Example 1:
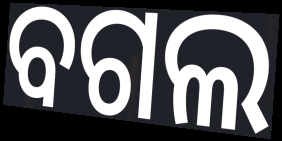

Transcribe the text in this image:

ବଗଲ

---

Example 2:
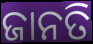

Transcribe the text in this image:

ଜାନତି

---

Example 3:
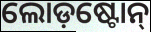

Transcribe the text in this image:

ଲୋଡ଼ଷ୍ଟୋନ୍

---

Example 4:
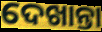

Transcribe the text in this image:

ଦେଖାନ୍ତା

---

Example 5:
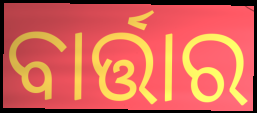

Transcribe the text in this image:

ବାର୍ତ୍ତାର